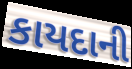
કાયદાની